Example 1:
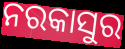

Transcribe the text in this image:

ନରକାସୁର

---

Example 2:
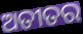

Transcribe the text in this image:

ଅତୀତର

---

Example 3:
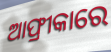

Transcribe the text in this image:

ଆଫ୍ରୀକାରେ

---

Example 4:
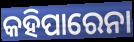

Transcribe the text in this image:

କହିପାରେନା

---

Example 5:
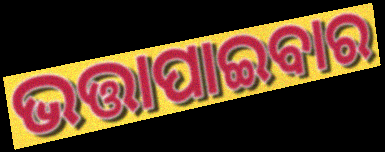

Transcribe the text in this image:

ଭତ୍ତାପାଇବାର